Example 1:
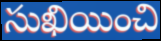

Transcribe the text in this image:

సుఖియించి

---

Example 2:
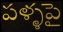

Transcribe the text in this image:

పళ్ళపై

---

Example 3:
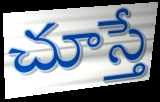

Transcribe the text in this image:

చూస్తే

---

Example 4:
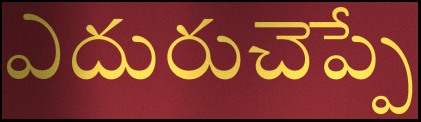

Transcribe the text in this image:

ఎదురుచెప్పే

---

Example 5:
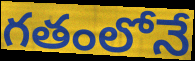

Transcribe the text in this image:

గతంలోనే